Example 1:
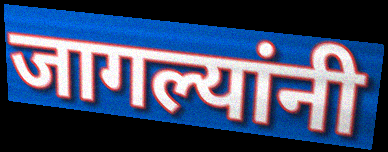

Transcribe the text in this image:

जागल्यांनी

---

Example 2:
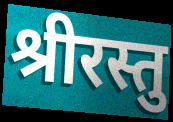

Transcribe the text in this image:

श्रीरस्तु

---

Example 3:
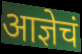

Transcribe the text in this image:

आज्ञेचं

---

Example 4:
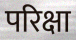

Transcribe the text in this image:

परिक्षा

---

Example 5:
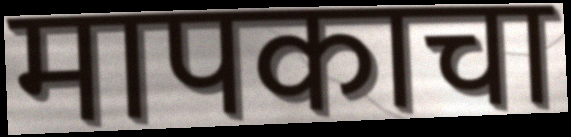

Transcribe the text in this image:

मापकाचा